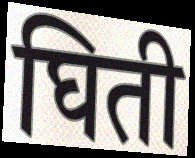
घिती